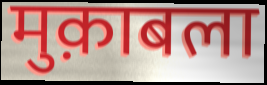
मुक़ाबला